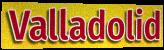
Valladolid